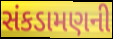
સંકડામણની